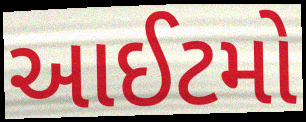
આઈટમો